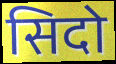
सिदो